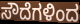
ಸೌದೆಗಳಿಂದ